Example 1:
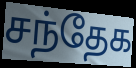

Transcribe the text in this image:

சந்தேக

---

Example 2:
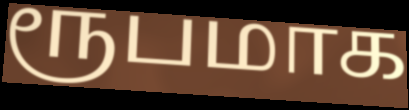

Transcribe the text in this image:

ரூபமாக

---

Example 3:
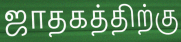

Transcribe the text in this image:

ஜாதகத்திற்கு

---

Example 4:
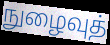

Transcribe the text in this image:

நுழைவுத்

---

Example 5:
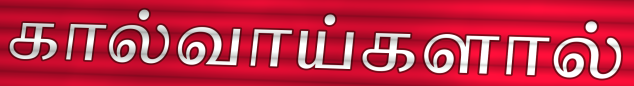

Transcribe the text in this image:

கால்வாய்களால்